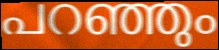
പറഞ്ഞും